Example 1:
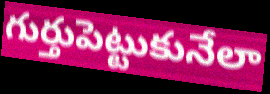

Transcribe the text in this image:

గుర్తుపెట్టుకునేలా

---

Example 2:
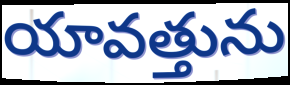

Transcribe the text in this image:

యావత్తును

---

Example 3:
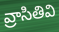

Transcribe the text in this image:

వ్రాసితివి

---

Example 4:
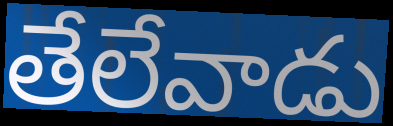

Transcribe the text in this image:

తేలేవాడు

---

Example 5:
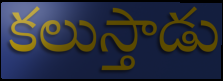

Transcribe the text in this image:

కలుస్తాడు